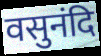
वसुनंदि